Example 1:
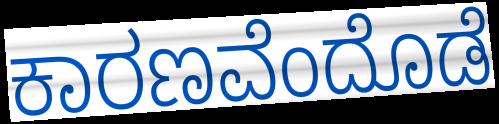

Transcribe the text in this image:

ಕಾರಣವೆಂದೊಡೆ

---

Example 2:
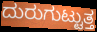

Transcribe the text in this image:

ದುರುಗುಟ್ಟುತ್ತ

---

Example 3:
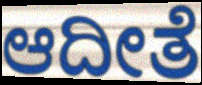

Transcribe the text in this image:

ಆದೀತೆ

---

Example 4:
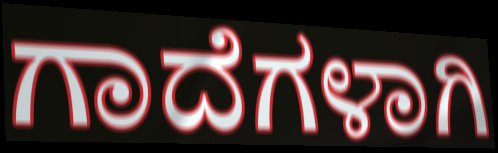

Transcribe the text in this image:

ಗಾದೆಗಳಾಗಿ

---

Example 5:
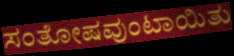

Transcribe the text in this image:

ಸಂತೋಷವುಂಟಾಯಿತು